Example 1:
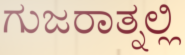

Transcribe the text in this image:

ಗುಜರಾತ್ನಲ್ಲಿ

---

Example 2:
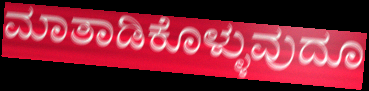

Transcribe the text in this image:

ಮಾತಾಡಿಕೊಳ್ಳುವುದೂ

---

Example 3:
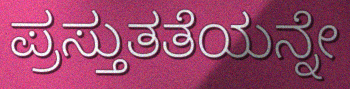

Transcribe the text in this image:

ಪ್ರಸ್ತುತತೆಯನ್ನೇ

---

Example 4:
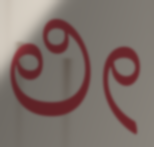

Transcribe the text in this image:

ಲೀ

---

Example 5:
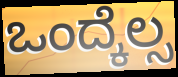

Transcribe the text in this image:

ಒಂದ್ಕೆಲ್ಸ